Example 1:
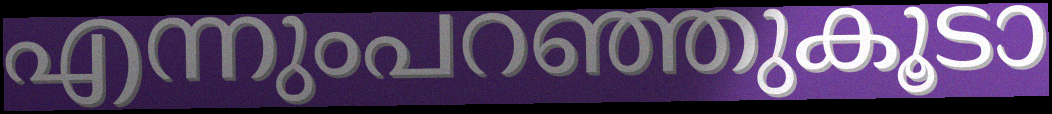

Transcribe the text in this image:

എന്നുംപറഞ്ഞുകൂടാ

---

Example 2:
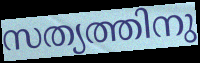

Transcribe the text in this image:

സത്യത്തിനു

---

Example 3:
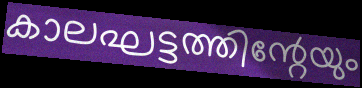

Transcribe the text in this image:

കാലഘട്ടത്തിന്റേയും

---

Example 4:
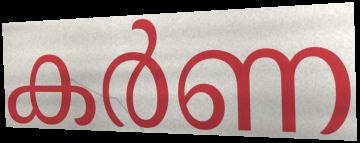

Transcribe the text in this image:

കർണ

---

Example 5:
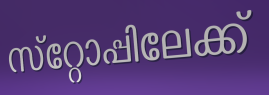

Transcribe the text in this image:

സ്‌റ്റോപ്പിലേക്ക്